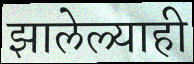
झालेल्याही